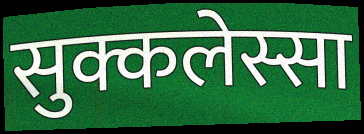
सुक्कलेस्सा